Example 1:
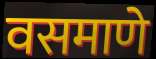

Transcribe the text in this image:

वसमाणे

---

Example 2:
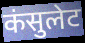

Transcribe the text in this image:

कंसुलेट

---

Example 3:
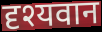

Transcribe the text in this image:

दृश्यवान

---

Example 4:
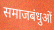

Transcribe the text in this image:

समाजबंधुओं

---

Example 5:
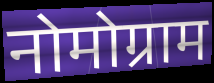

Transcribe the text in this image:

नोमोग्राम